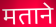
मताने